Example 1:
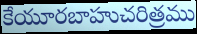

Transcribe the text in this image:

కేయూరబాహుచరిత్రము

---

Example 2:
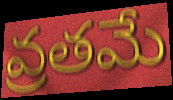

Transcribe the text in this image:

వ్రతమే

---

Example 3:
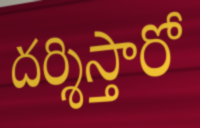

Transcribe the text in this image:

దర్శిస్తారో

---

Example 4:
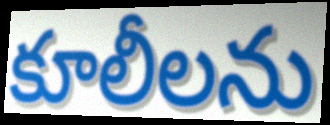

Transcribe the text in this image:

కూలీలను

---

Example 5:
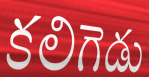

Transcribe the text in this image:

కలిగెడు